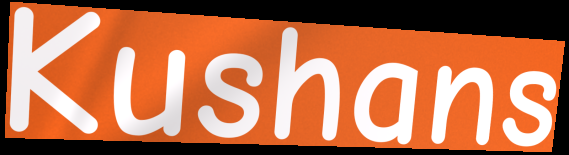
Kushans